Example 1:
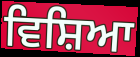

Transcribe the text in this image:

ਵਿਸ਼ਿਆ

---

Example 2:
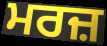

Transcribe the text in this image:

ਮਰਜ਼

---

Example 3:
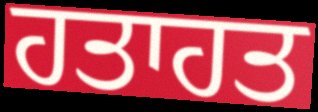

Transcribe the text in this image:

ਹਤਾਹਤ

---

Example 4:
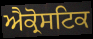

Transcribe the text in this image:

ਐਕ੍ਰੋਸਟਿਕ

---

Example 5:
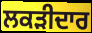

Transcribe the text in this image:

ਲਕੜੀਦਾਰ